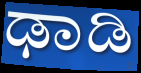
ಢಾಡಿ